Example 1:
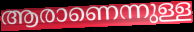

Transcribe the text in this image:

ആരാണെന്നുള്ള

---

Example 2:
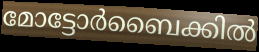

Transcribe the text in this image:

മോട്ടോർബൈക്കിൽ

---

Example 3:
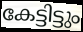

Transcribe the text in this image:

കേട്ടിട്ടും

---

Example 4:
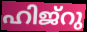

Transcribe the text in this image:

ഹിജ്റു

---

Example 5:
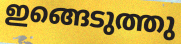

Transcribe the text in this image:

ഇങ്ങെടുത്തു